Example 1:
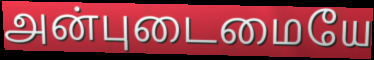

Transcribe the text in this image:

அன்புடைமையே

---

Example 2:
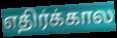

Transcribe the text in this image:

எதிர்க்கால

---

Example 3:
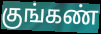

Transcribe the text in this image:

குங்கண்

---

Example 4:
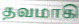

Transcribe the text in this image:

தவமாகி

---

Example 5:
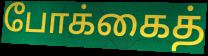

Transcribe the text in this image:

போக்கைத்